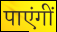
पाएंगीं